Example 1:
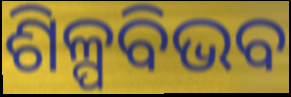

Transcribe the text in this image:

ଶିଳ୍ପବିଭବ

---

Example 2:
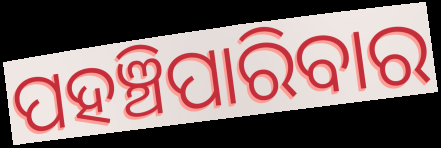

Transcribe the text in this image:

ପହଞ୍ଚିପାରିବାର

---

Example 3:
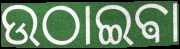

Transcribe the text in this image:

ଉଠାଇଵା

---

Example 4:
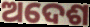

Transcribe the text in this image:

ଅଦେଶ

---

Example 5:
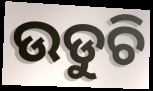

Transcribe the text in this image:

ଉଡୁଚି